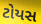
ટોયસ